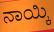
ನಾಯ್ಕಿ